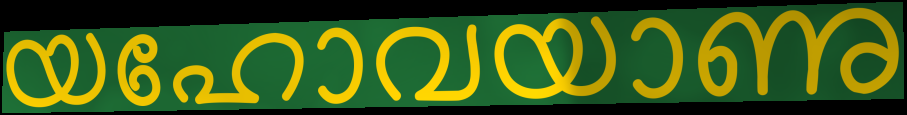
യഹോവയാണു